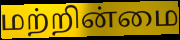
மற்றின்மை